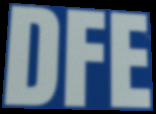
DFE